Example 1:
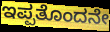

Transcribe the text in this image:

ಇಪ್ಪತೊಂದನೇ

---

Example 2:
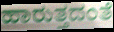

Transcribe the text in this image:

ಹಾರುತ್ತದಂತೆ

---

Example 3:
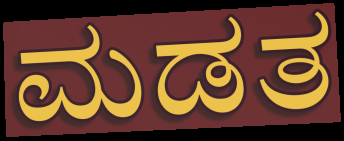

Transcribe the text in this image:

ಮಡತ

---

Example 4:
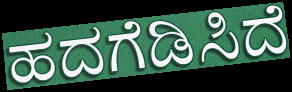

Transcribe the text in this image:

ಹದಗೆಡಿಸಿದೆ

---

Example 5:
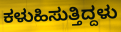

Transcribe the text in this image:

ಕಳುಹಿಸುತ್ತಿದ್ದಳು